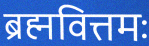
ब्रह्मवित्तमः